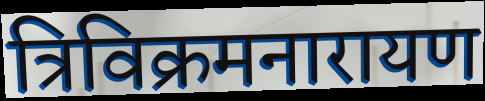
त्रिविक्रमनारायण